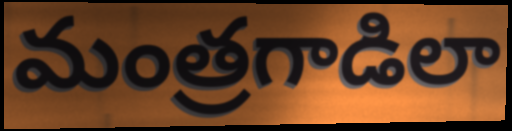
మంత్రగాడిలా